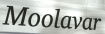
Moolavar